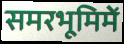
समरभूमिमें